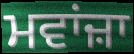
ਮਵਾਂਜ਼ਾ